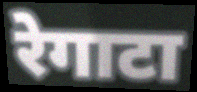
रेगाटा